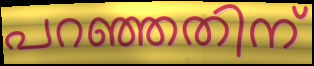
പറഞ്ഞതിന്